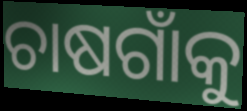
ଚାଷଗାଁକୁ